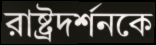
রাষ্ট্রদর্শনকে